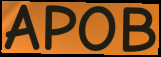
APOB